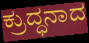
ಕ್ರುದ್ಧನಾದ